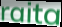
raita